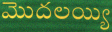
మొదలయ్యి